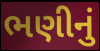
ભણીનું